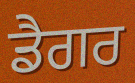
ਡੈਗਰ